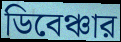
ডিবেঞ্চার